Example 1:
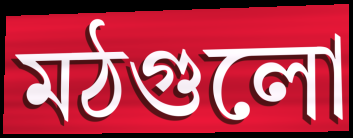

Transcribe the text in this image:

মঠগুলো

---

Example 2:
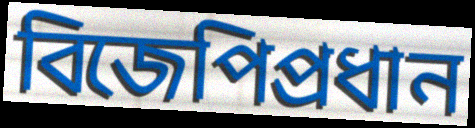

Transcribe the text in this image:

বিজেপিপ্রধান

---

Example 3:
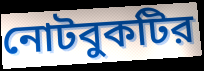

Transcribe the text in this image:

নোটবুকটির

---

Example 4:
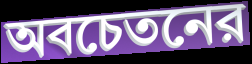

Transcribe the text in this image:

অবচেতনের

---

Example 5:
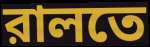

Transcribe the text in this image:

রালতে